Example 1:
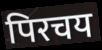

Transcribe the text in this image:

पिरचय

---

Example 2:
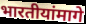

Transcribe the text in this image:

भारतीयांमागे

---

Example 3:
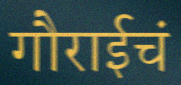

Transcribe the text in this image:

गौराईचं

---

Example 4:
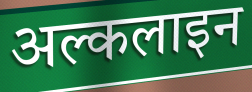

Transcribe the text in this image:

अल्कलाइन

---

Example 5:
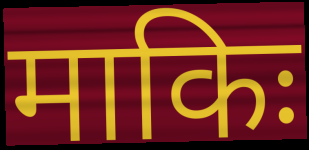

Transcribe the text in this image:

माकिः